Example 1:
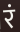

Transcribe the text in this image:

रं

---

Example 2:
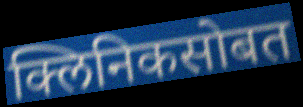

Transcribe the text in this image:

क्लिनिकसोबत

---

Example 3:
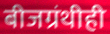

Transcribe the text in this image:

बीजग्रंथीही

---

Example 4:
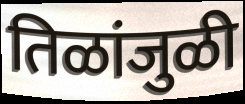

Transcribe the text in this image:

तिळांजुळी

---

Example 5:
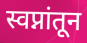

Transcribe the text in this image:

स्वप्नांतून